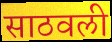
साठवली